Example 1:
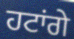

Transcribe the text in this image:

ਹਟਾਂਗੇ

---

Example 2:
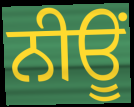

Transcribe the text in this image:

ਨੀਊਂ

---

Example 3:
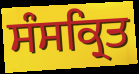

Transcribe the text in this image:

ਸੰਸਕ੍ਰਿਤ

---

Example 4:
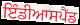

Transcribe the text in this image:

ਇੰਡੀਆਸਪੈਂਡ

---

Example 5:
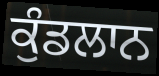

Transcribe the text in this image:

ਕੁੰਡਲਾਨ